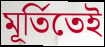
মূর্তিতেই